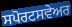
ਸਪੋਰਟਸਵੇਅਰ